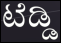
ಟೆಡ್ಡಿ